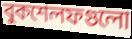
বুকশেলফগুলো